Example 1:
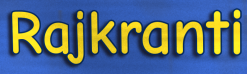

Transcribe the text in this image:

Rajkranti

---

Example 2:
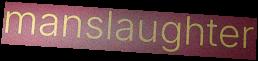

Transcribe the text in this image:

manslaughter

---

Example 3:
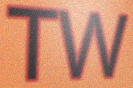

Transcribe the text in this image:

TW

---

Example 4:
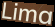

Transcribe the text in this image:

Lima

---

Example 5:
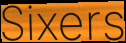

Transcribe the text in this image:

Sixers